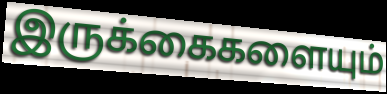
இருக்கைகளையும்